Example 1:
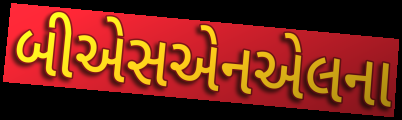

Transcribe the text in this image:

બીએસએનએલના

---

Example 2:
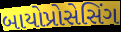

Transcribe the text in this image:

બાયોપ્રોસેસિંગ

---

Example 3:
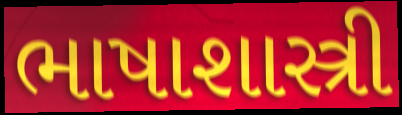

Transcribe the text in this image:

ભાષાશાસ્ત્રી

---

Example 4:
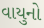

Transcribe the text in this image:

વાયુનો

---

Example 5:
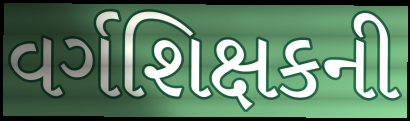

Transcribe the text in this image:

વર્ગશિક્ષકની